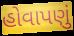
હોવાપણું